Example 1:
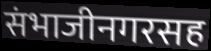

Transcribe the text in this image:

संभाजीनगरसह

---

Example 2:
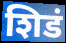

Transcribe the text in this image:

शिडं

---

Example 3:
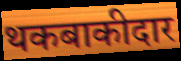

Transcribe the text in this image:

थकबाकीदार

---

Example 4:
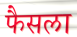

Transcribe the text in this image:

फैसला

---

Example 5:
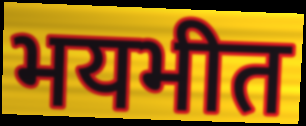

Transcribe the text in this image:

भयभीत